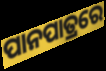
ପାନପାତ୍ରରେ